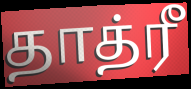
தாத்ரீ